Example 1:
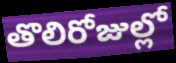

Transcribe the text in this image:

తొలిరోజుల్లో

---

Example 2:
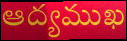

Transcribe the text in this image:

ఆద్యముఖ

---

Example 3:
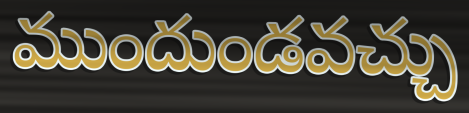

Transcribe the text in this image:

ముందుండవచ్చు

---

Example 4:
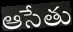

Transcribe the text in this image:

ఆసేతు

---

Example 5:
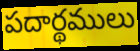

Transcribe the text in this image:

పదార్థములు